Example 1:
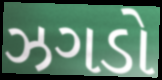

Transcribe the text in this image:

ઝગડો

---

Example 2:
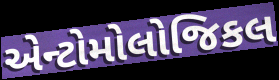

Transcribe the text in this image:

એન્ટોમોલોજિકલ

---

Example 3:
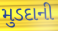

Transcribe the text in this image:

મુડદાની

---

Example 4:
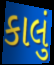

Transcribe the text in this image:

કાલું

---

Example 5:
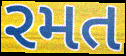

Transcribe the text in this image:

રમત